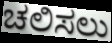
ಚಲಿಸಲು